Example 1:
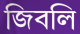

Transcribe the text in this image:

জিবলি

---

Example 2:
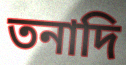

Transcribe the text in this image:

তনাদি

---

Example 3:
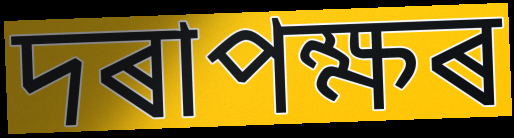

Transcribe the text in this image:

দৰাপক্ষৰ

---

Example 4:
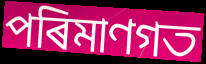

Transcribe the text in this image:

পৰিমাণগত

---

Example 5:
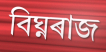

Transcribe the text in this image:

বিঘ্নৰাজ